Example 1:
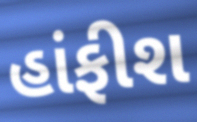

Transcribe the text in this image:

હાંફીશ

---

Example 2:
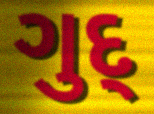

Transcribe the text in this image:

ગુદ્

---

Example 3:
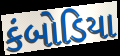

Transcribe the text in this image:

કંબોડિયા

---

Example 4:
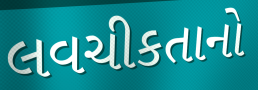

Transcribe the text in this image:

લવચીકતાનો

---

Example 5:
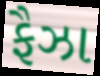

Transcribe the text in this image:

ફૈઝા